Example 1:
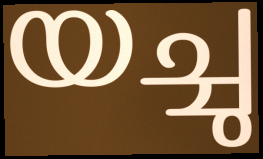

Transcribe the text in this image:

യച്ചു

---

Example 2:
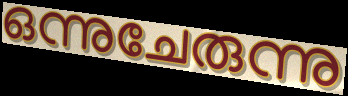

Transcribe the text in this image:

ഒന്നുചേരുന്നു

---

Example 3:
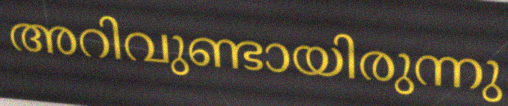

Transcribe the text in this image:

അറിവുണ്ടായിരുന്നു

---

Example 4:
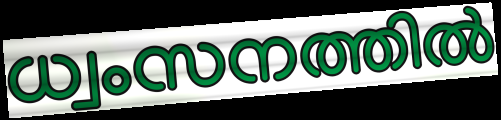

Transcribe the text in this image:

ധ്വംസനത്തിൽ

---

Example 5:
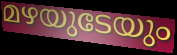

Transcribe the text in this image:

മഴയുടേയും